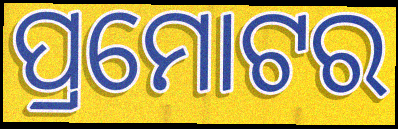
ପ୍ରମୋଟର